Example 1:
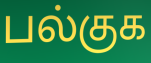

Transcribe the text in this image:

பல்குக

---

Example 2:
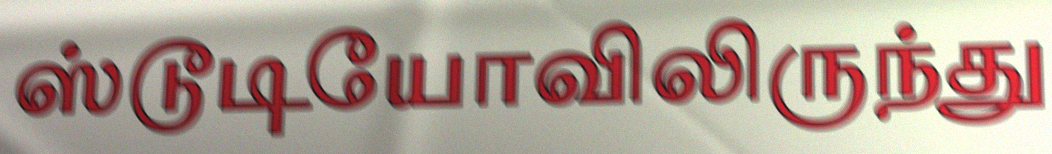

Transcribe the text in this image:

ஸ்டூடியோவிலிருந்து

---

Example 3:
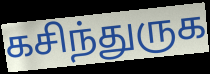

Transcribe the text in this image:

கசிந்துருக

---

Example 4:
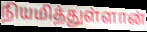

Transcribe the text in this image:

நியமித்துள்ளான்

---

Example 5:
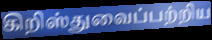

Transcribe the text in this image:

கிறிஸ்துவைப்பற்றிய